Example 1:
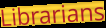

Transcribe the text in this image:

Librarians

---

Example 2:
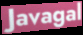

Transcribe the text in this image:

Javagal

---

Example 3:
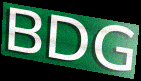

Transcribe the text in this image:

BDG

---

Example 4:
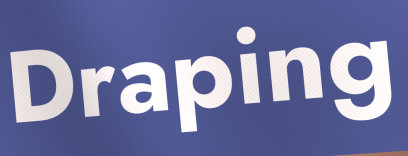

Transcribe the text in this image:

Draping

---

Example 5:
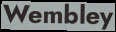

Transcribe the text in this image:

Wembley